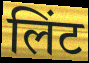
लिंट